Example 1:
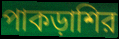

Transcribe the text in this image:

পাকড়াশির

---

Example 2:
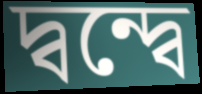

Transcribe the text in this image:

দ্বন্দ্বে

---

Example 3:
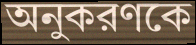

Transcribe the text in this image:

অনুকরণকে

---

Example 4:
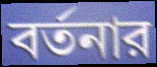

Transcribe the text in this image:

বর্তনার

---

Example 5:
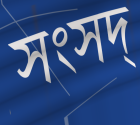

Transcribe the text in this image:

সংসদ্